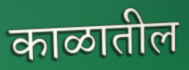
काळातील